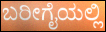
ಬರೀಗೈಯಲ್ಲಿ